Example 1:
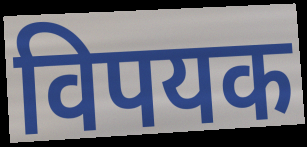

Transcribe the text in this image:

विपयक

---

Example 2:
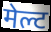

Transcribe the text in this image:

मेल्ट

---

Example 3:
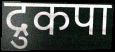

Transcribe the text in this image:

द्रुकपा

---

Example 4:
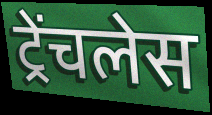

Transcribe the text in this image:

ट्रेंचलेस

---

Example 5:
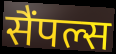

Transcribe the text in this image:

सैंपल्‍स